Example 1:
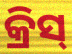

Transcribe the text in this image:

କ୍ରିସ୍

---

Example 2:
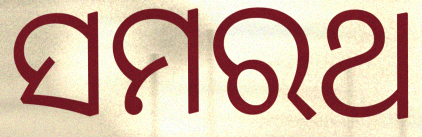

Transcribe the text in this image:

ସମରଥ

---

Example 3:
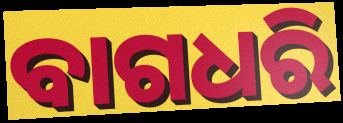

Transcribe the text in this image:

ବାଗଧରି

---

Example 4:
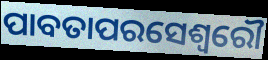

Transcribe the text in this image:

ପାବତାପରସେଶ୍ୱରୌ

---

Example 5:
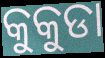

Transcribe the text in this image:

କୁକୁଡା